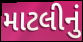
માટલીનું